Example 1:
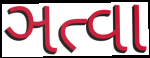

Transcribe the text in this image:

ઞત્વા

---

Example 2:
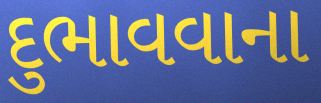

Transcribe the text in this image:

દુભાવવાના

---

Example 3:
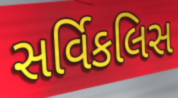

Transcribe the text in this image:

સર્વિકલિસ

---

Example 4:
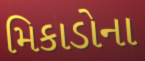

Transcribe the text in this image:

મિકાડોના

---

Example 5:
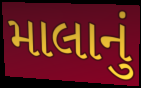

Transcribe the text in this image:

માલાનું